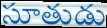
సూతుడు